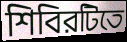
শিবিরটিতে